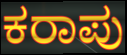
ಕರಾಪು